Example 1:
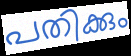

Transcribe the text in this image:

പതിക്കും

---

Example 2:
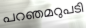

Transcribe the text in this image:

പറഞമറുപടി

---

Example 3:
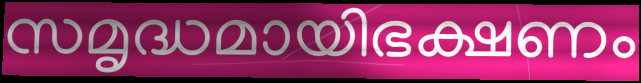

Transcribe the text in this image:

സമൃദ്ധമായിഭക്ഷണം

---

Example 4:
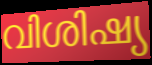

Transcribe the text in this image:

വിശിഷ്യ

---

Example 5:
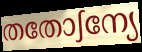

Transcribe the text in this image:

തതോഽന്യേ